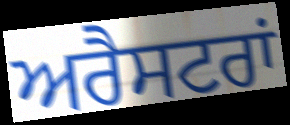
ਅਰੈਸਟਰਾਂ